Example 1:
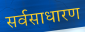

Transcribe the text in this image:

सर्वसाधारण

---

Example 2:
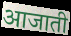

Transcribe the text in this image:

आजाती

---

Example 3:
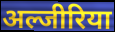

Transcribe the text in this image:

अल्जीरिया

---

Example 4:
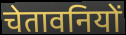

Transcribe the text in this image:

चेतावनियों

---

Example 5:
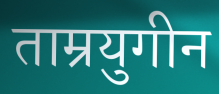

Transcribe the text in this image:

ताम्रयुगीन